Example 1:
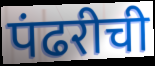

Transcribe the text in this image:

पंढरीची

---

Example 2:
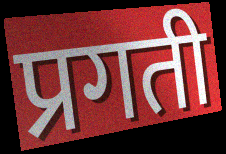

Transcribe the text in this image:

प्रगती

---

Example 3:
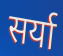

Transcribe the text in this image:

सर्या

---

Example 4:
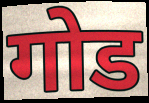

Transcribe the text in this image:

गोड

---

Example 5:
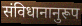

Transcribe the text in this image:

संविधानानुरूप